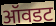
ऑवडट